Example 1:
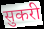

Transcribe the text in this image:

सुकरी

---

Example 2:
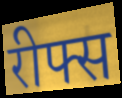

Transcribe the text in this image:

रीफ्स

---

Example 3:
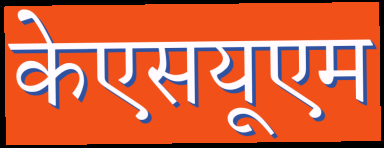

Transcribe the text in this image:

केएसयूएम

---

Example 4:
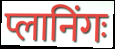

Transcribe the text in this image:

प्लानिंगः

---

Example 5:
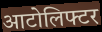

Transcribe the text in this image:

आटोलिफ्टर